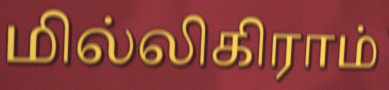
மில்லிகிராம்